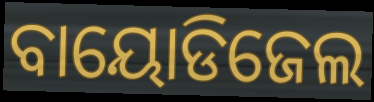
ବାୟୋଡିଜେଲ